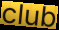
club